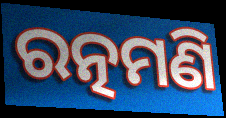
ରତ୍ନମଣି